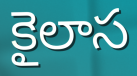
కైలాస